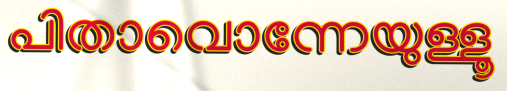
പിതാവൊന്നേയുള്ളൂ